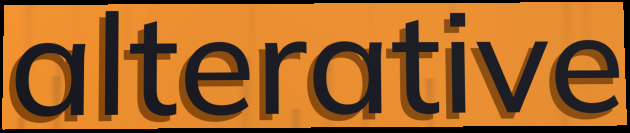
alterative